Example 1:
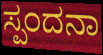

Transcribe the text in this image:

ಸ್ಪಂದನಾ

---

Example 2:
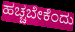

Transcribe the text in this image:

ಹಚ್ಚಬೇಕೆಂದು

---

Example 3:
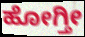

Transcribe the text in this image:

ಹೋಗ್ತೀ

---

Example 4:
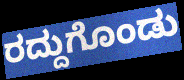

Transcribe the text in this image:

ರದ್ದುಗೊಂಡು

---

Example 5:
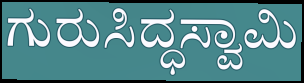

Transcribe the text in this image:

ಗುರುಸಿದ್ಧಸ್ವಾಮಿ